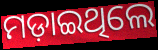
ମଡ଼ାଇଥିଲେ